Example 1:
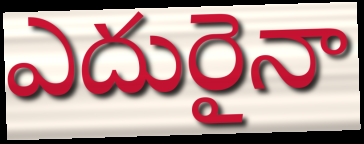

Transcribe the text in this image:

ఎదురైనా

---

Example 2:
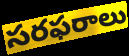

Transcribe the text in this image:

సరఫరాలు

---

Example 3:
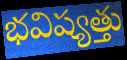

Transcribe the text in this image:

భవిష్యత్తు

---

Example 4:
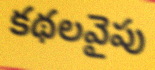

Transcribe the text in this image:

కథలవైపు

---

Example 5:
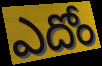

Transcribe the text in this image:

ఎదోం